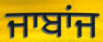
ਜਾਬਾਂਜ